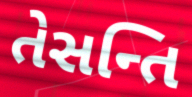
તેસન્તિ